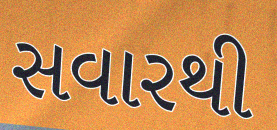
સવારથી